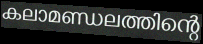
കലാമണ്ഡലത്തിന്റെ